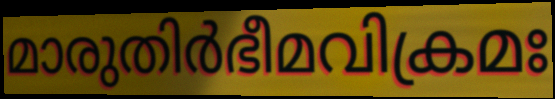
മാരുതിർഭീമവിക്രമഃ